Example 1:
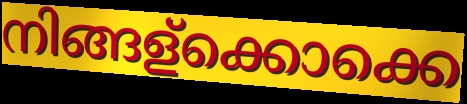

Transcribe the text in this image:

നിങ്ങള്ക്കൊക്കെ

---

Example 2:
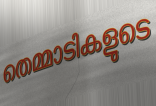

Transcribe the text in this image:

തെമ്മാടികളുടെ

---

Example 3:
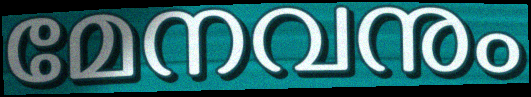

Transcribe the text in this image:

മേനവനും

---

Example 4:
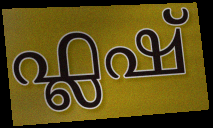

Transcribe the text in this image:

ഫ്ലഷ്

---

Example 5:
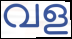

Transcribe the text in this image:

വള